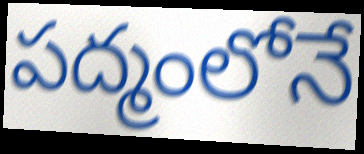
పద్మంలోనే